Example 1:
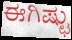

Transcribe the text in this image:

ಈಗಿಷ್ಟು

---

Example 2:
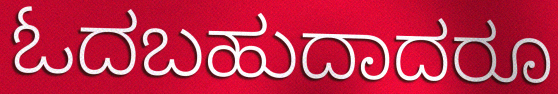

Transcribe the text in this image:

ಓದಬಹುದಾದರೂ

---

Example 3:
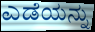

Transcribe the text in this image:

ಎಡೆಯನ್ನು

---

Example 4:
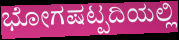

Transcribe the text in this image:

ಭೋಗಷಟ್ಪದಿಯಲ್ಲಿ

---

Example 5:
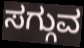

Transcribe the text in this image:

ಸಗ್ಗುವ